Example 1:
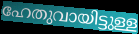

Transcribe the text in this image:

ഹേതുവായിട്ടുള്ള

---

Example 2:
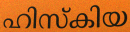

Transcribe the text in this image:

ഹിസ്കിയ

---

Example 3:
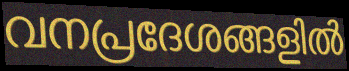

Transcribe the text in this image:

വനപ്രദേശങ്ങളിൽ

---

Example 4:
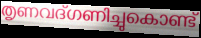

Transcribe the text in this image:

തൃണവദ്ഗണിച്ചുകൊണ്ട്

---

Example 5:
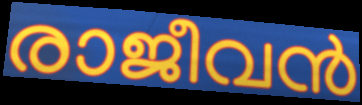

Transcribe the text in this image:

രാജീവൻ